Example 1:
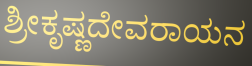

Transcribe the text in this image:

ಶ್ರೀಕೃಷ್ಣದೇವರಾಯನ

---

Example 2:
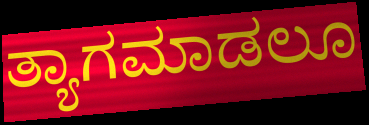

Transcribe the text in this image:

ತ್ಯಾಗಮಾಡಲೂ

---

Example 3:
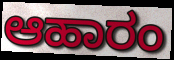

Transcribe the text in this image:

ಆಹಾರಂ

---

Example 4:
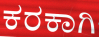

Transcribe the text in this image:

ಕರಕಾಗಿ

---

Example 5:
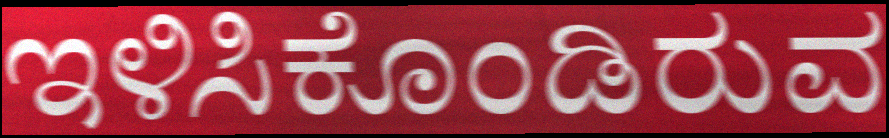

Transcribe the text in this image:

ಇಳಿಸಿಕೊಂಡಿರುವ